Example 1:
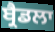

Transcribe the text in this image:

ਬ੍ਰੈਡਲਾ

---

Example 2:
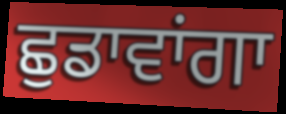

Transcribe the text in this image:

ਛੁਡਾਵਾਂਗਾ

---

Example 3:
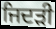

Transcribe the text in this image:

ਜਿਦੜੀ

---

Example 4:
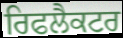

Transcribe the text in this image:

ਰਿਫਲੈਕਟਰ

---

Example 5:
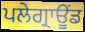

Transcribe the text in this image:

ਪਲੇਗ੍ਰਾਊਂਡ